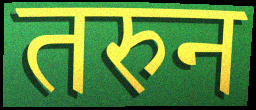
तरुन